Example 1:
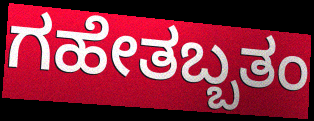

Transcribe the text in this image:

ಗಹೇತಬ್ಬತಂ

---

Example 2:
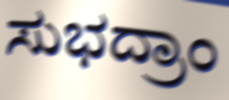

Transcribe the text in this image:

ಸುಭದ್ರಾಂ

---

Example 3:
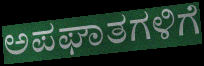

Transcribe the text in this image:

ಅಪಘಾತಗಳಿಗೆ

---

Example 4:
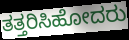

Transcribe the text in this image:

ತತ್ತರಿಸಿಹೋದರು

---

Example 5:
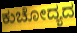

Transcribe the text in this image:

ಕುಚೋದ್ಯದ